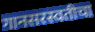
गानसरस्वतीचा